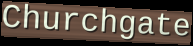
Churchgate